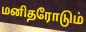
மனிதரோடும்